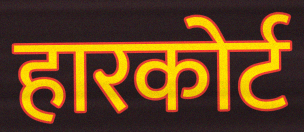
हारकोर्ट